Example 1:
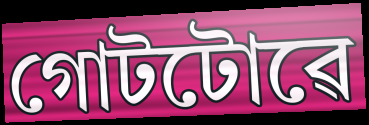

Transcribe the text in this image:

গোটটোৱে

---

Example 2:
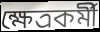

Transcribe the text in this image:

ক্ষেত্ৰকৰ্মী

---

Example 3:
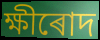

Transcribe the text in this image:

ক্ষীৰোদ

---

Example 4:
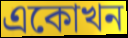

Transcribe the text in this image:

একোখন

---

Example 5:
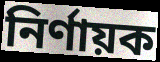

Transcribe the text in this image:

নিৰ্ণায়ক